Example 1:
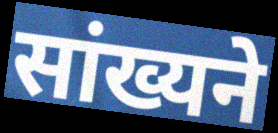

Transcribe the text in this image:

सांख्यने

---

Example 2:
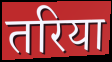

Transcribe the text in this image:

तरिया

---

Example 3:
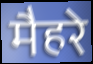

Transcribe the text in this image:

मैहरे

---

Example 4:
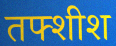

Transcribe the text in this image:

तफ्शीश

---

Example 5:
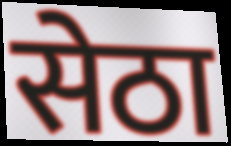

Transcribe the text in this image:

सेठा